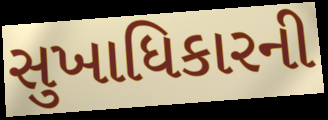
સુખાધિકારની